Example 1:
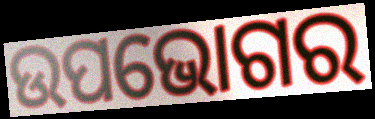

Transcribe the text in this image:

ଉପଭୋଗର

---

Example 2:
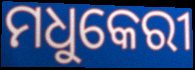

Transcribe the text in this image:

ମଧୁକେରୀ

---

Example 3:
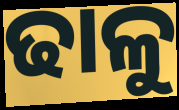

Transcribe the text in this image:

ଢାଳୁ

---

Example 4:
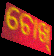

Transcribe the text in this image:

ଚୋଖ୍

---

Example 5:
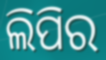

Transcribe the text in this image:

ଲିପିର